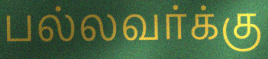
பல்லவர்க்கு